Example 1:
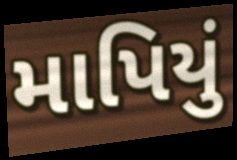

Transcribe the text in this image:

માપિયું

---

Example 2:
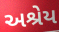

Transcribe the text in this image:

અશ્રેય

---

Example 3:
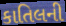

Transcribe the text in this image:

કાતિલની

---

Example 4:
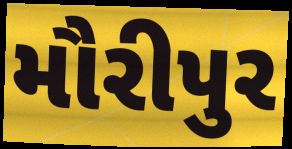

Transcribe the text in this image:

મૌરીપુર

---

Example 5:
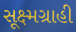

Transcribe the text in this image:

સૂક્ષ્મગ્રાહી